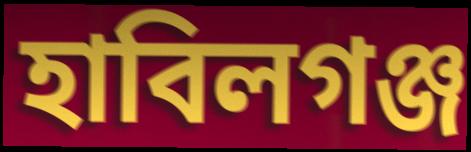
হাবিলগঞ্জ